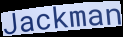
Jackman